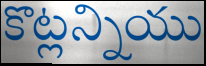
కొట్లన్నియు